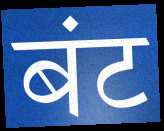
बंट